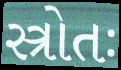
સ્ત્રોતઃ